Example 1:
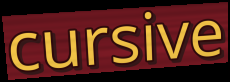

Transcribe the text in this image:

cursive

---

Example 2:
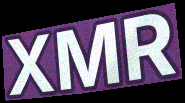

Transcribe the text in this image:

XMR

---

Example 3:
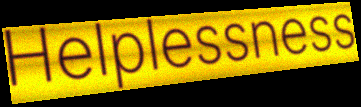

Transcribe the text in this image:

Helplessness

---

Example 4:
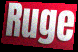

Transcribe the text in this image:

Ruge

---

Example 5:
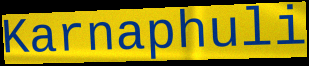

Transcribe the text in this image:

Karnaphuli